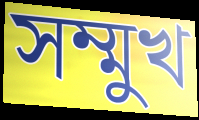
সম্মুখ